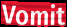
Vomit